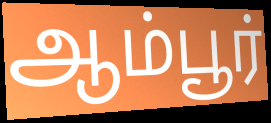
ஆம்பூர்